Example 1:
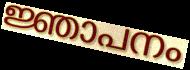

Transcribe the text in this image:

ജ്ഞാപനം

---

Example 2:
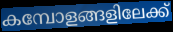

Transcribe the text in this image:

കമ്പോളങ്ങളിലേക്ക്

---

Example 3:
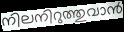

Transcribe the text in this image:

നിലനിറുത്തുവാൻ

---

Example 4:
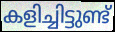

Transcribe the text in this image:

കളിച്ചിട്ടുണ്ട്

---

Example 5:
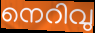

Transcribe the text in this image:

നെറിവു